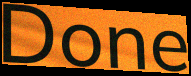
Done